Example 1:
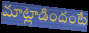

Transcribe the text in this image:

మాట్లాడిందంటే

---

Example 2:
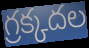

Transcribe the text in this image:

గ్రక్కదల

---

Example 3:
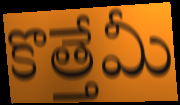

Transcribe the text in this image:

కొత్తేమీ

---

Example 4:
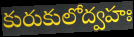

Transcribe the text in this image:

కురుకులోద్వహః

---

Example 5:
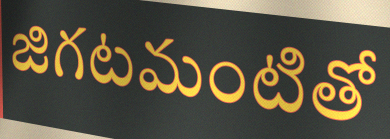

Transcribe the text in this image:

జిగటమంటితో